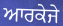
ਆਰਕੇਜੇ